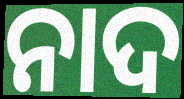
ନାଦ